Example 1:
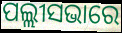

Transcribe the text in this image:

ପଲ୍ଲୀସଭାରେ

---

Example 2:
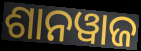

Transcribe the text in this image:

ଶାନୱାଜ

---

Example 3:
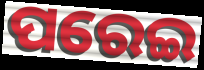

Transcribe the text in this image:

ପରେଇ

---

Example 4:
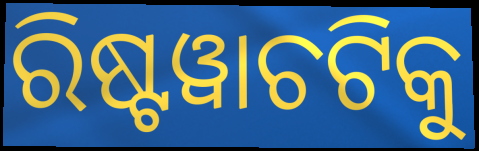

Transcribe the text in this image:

ରିଷ୍ଟୱାଚଟିକୁ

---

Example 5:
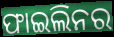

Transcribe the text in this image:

ଫାଇଲିନର